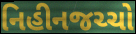
નિહીનજચ્ચો